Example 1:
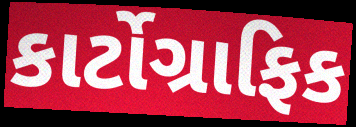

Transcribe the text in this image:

કાર્ટોગ્રાફિક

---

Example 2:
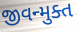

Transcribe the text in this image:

જીવન્મુક્ત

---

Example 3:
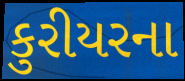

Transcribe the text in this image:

કુરીયરના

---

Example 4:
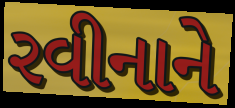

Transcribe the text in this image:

રવીનાને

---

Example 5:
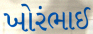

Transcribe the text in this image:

ખોરંભાઈ